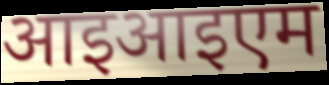
आइआइएम